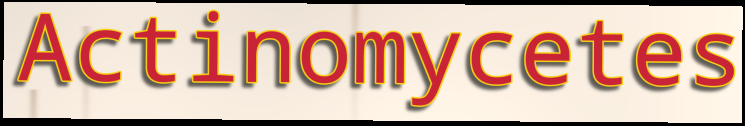
Actinomycetes